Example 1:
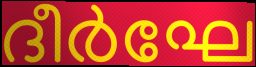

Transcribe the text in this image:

ദീർഘേ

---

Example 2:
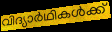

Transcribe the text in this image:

വിദ്യാർഥികൾക്ക്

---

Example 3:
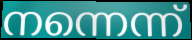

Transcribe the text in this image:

നന്നെന്ന്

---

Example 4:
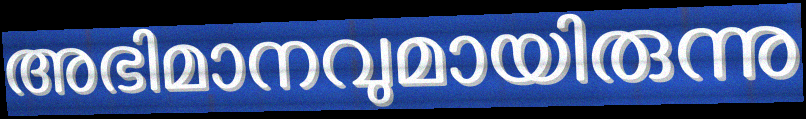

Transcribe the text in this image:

അഭിമാനവുമായിരുന്നു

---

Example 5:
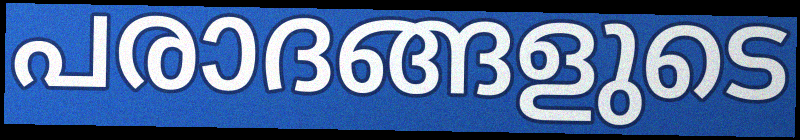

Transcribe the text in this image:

പരാദങ്ങളുടെ